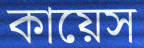
কায়েস